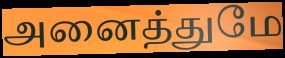
அனைத்துமே